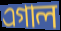
এগাল